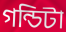
গন্ডিটা